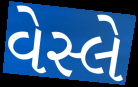
વેસ્લે